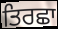
ਤਿਰਛਾ